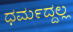
ಧರ್ಮದ್ದಲ್ಲ